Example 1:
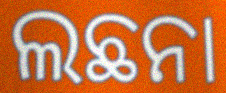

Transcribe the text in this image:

ଲଛନା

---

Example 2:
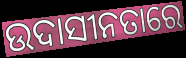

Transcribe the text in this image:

ଉଦାସୀନତାରେ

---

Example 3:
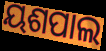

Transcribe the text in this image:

ୟଶପାଲ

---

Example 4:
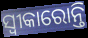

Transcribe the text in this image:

ସ୍ଵୀକାରୋନ୍ତି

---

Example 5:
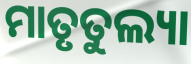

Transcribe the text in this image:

ମାତୃତୁଲ୍ୟା